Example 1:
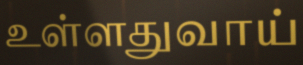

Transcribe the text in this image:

உள்ளதுவாய்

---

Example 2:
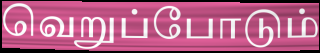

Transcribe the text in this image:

வெறுப்போடும்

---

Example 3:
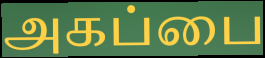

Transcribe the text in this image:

அகப்பை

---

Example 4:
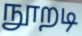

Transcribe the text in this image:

நூறடி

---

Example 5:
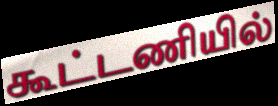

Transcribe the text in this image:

கூட்டணியில்